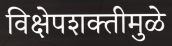
विक्षेपशक्तीमुळे